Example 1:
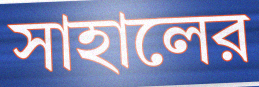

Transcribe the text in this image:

সাহালের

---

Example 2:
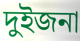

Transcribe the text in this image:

দুইজনা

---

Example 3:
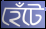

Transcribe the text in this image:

হেঁটে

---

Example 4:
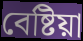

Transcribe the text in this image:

বেষ্টিয়া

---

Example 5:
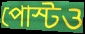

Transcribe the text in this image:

পোস্টও